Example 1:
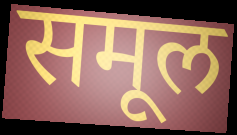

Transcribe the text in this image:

समूल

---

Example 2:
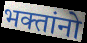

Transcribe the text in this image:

भक्तांनो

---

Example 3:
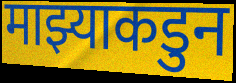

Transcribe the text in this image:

माझ्याकडुन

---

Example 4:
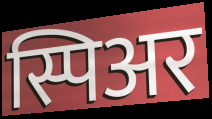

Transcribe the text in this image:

स्पिअर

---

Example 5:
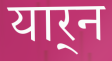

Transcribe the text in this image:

यार्न